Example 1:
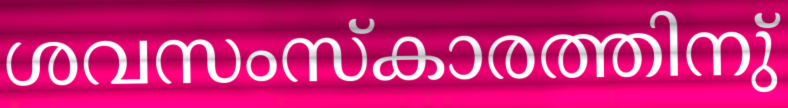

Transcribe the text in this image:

ശവസംസ്കാരത്തിനു്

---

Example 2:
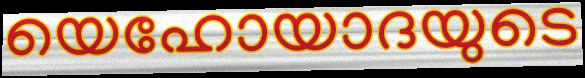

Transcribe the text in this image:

യെഹോയാദയുടെ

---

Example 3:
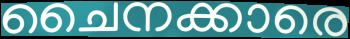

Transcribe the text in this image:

ചൈനക്കാരെ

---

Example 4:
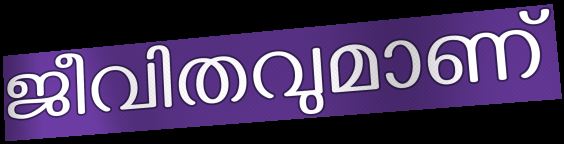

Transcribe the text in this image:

ജീവിതവുമാണ്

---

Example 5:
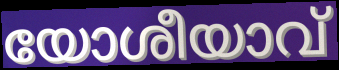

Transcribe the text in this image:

യോശീയാവ്